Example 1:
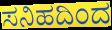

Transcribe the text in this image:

ಸನಿಹದಿಂದ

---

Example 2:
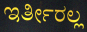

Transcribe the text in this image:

ಇರ್ತೀರಲ್ಲ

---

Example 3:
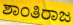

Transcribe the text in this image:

ಶಾಂತಿರಾಜ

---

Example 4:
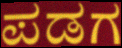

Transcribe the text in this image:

ಪಡಗ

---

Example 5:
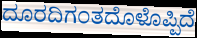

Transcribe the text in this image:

ದೂರದಿಗಂತದೊಳೊಪ್ಪಿದೆ